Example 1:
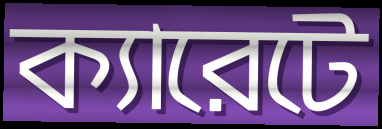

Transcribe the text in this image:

ক্যারেটে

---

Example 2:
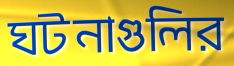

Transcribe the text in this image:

ঘটনাগুলির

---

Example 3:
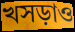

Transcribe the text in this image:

খসড়াও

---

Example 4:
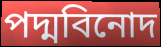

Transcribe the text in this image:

পদ্মবিনোদ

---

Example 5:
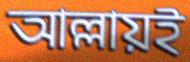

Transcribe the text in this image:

আল্লায়ই